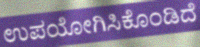
ಉಪಯೋಗಿಸಿಕೊಂಡಿದೆ